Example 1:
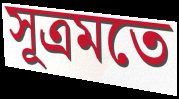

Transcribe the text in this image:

সূত্ৰমতে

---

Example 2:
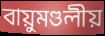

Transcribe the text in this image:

বায়ুমণ্ডলীয়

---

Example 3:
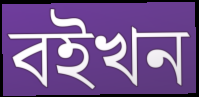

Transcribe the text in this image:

বইখন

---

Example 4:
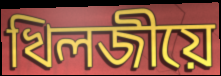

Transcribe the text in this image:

খিলজীয়ে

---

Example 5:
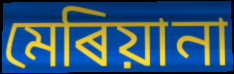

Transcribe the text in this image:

মেৰিয়ানা